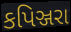
કપિઞ્જરા